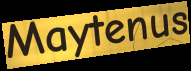
Maytenus